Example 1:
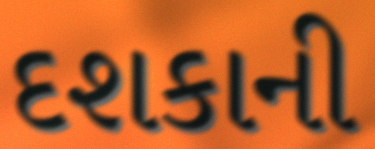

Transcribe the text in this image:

દશકાની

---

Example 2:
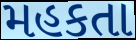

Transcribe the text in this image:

મહકતા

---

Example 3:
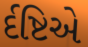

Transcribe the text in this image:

ર્દષ્ટિએ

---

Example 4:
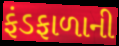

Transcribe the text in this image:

ફંડફાળાની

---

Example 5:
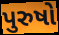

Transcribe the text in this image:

પુરુષો